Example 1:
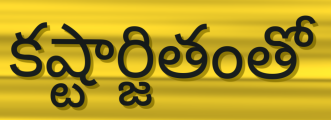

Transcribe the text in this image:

కష్టార్జితంతో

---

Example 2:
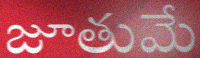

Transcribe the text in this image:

జూతుమే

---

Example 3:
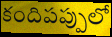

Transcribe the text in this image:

కందిపప్పులో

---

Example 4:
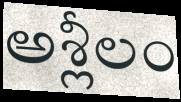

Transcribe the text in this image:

అశ్లీలం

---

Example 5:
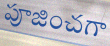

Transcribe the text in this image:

పూజించగా